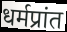
धर्मप्रांत